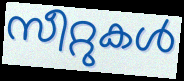
സീറ്റുകൾ